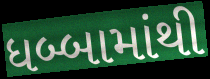
ધબ્બામાંથી